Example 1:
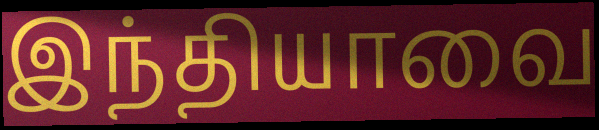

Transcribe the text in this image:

இந்தியாவை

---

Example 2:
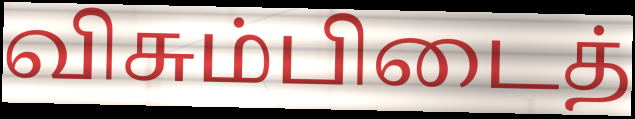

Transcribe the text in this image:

விசும்பிடைத்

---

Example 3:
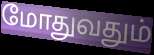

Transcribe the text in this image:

மோதுவதும்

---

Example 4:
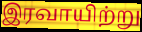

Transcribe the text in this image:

இரவாயிற்று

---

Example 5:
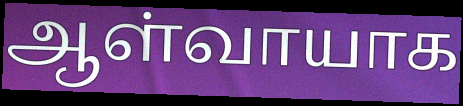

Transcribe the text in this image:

ஆள்வாயாக